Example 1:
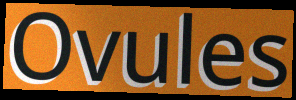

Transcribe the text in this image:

Ovules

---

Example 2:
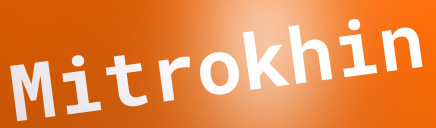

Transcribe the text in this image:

Mitrokhin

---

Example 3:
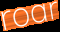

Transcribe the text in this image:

roar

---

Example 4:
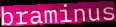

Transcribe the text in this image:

braminus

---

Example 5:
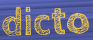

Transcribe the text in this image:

dicto